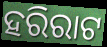
ହରିରାଟ